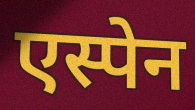
एस्पेन